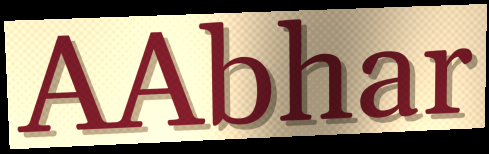
AAbhar